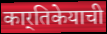
कार्तिकेयाची